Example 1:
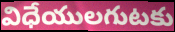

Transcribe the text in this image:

విధేయులగుటకు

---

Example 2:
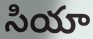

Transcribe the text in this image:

సియా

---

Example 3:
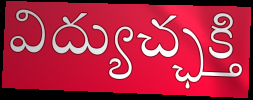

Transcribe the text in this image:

విద్యుచ్ఛక్తి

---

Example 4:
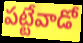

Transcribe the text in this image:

పట్టేవాడో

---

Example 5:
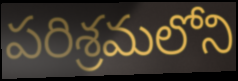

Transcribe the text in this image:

పరిశ్రమలోని